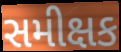
સમીક્ષક